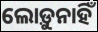
ଲୋଡ଼ୁନାହିଁ